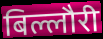
बिल्लौरी